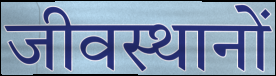
जीवस्थानों